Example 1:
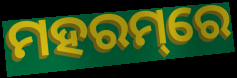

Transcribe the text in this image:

ମହରମ୍‌ରେ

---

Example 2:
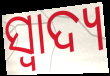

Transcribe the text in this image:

ସ୍ଵାଦ୍ୟ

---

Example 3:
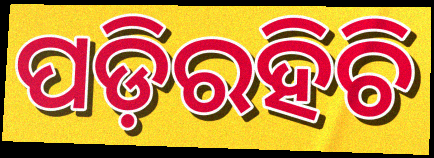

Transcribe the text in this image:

ପଡ଼ିରହିଚି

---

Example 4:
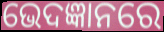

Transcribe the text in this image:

ଭେଦଜ୍ଞାନରେ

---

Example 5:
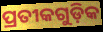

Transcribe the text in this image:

ପ୍ରତୀକଗୁଡ଼ିକ